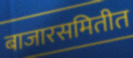
बाजारसमितीत